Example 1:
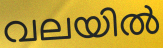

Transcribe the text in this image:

വലയിൽ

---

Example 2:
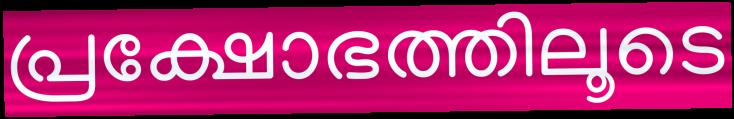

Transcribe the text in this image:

പ്രക്ഷോഭത്തിലൂടെ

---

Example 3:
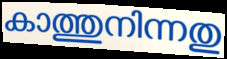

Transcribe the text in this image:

കാത്തുനിന്നതു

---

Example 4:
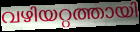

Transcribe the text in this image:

വഴിയറ്റത്തായി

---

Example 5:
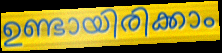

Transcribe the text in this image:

ഉണ്ടായിരിക്കാം